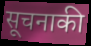
सूचनाकी